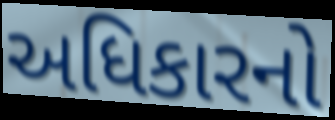
અધિકારનો